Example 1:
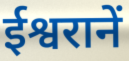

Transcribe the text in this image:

ईश्वरानें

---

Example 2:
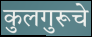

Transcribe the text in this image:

कुलगुरूचे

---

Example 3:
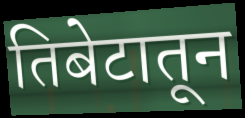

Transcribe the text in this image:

तिबेटातून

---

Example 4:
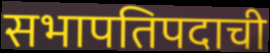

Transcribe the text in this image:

सभापतिपदाची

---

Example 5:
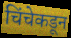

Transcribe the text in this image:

चिंचेकडून